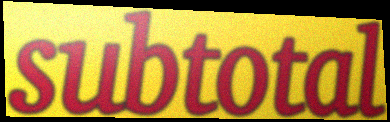
subtotal